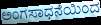
ಅಂಗಸಾಧನೆಯಿಂದ